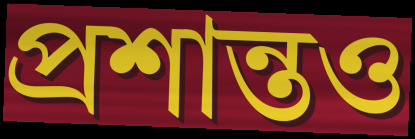
প্রশান্তও